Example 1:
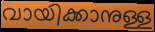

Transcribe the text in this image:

വായിക്കാനുള്ള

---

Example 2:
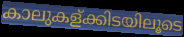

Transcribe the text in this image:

കാലുകള്ക്കിടയിലൂടെ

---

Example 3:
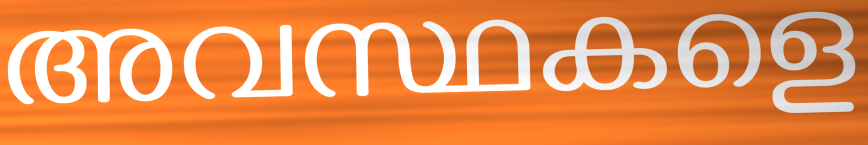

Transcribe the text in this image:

അവസ്ഥകളെ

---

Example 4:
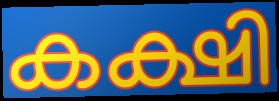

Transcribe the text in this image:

കക്ഷി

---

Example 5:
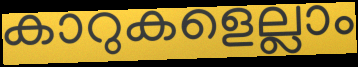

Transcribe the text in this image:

കാറുകളെല്ലാം